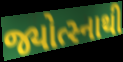
જ્યોત્સ્નાથી